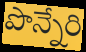
పొన్నేరి